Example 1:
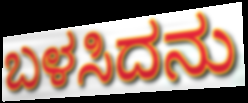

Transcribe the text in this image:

ಬಳಸಿದನು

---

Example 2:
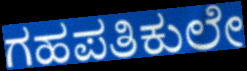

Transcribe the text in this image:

ಗಹಪತಿಕುಲೇ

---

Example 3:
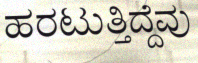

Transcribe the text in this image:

ಹರಟುತ್ತಿದ್ದೆವು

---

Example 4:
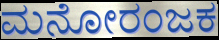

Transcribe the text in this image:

ಮನೋರಂಜಕ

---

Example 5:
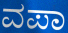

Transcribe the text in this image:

ವಪಾ